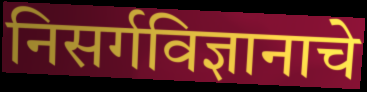
निसर्गविज्ञानाचे